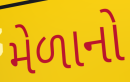
મેળાનો